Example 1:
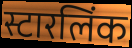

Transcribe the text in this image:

स्टारलिंक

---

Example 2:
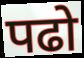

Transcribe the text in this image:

पढो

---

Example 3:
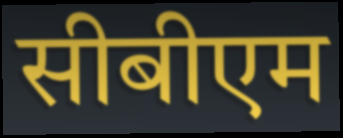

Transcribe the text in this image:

सीबीएम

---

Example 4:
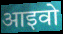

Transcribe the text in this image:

आइवो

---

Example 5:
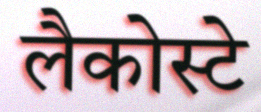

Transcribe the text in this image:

लैकोस्टे